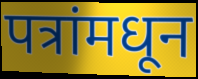
पत्रांमधून